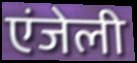
एंजेली